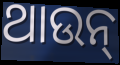
ଥାଉନ୍